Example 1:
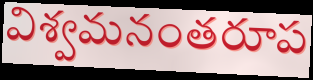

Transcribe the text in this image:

విశ్వమనంతరూప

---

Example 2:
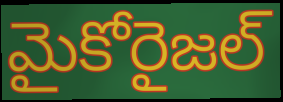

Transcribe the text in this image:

మైకోరైజల్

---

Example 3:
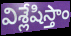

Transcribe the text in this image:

విశ్లేషిస్తాం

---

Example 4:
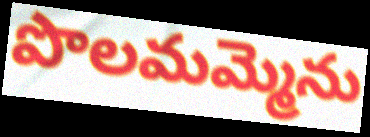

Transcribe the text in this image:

పొలమమ్మెను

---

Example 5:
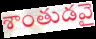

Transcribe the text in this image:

శాంతుడవై